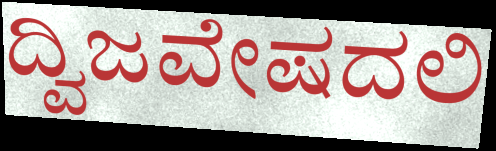
ದ್ವಿಜವೇಷದಲಿ